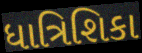
ધાત્રિશિકા